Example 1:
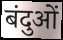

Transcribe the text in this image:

बंदुओं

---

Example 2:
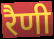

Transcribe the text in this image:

रैणी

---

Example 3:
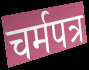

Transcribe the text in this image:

चर्मपत्र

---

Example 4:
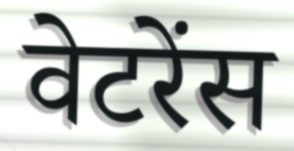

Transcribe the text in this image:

वेटरेंस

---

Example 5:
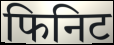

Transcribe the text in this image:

फिनिट